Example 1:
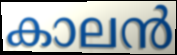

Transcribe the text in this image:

കാലൻ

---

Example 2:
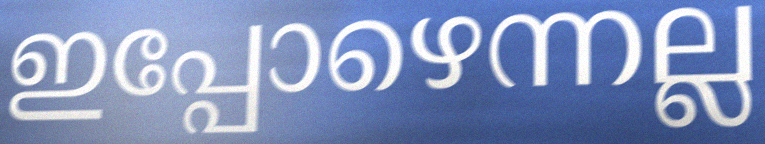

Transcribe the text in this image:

ഇപ്പോഴെന്നല്ല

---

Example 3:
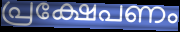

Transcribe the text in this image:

പ്രക്ഷേപണം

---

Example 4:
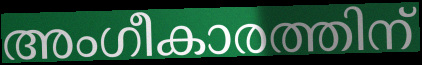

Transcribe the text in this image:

അംഗീകാരത്തിന്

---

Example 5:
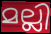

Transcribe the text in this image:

മല്ലി